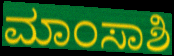
ಮಾಂಸಾಶಿ